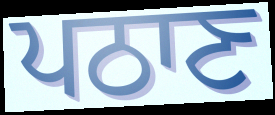
ਪਠਾਣ